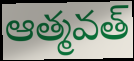
ఆత్మవత్